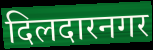
दिलदारनगर